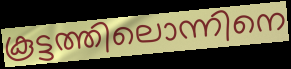
കൂട്ടത്തിലൊന്നിനെ